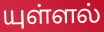
யுள்ளல்